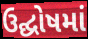
ઉદ્ઘોષમાં